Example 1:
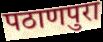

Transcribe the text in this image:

पठाणपुरा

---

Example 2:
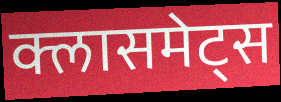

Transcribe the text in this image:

क्लासमेट्स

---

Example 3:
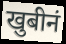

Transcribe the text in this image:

खुबीनं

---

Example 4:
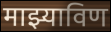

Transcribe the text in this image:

माझ्याविण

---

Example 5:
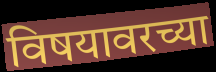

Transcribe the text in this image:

विषयावरच्या